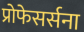
प्रोफेसर्सना